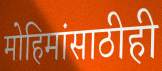
मोहिमांसाठीही